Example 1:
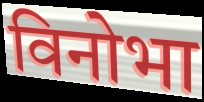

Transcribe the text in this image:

विनोभा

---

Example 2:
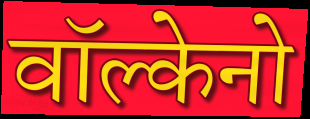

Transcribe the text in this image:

वॉल्केनो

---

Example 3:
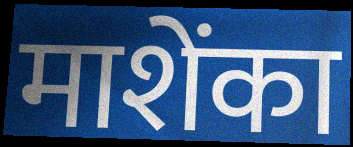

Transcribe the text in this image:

माशेंका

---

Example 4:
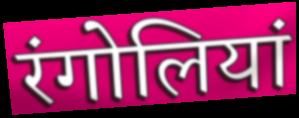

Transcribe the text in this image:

रंगोलियां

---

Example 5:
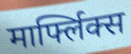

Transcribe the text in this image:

मार्फ्लिक्स